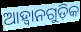
ଆହ୍ବାନଗୁଡ଼ିକ